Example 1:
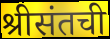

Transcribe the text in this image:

श्रीसंतची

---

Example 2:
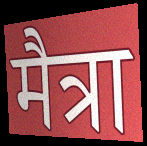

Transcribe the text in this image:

मैत्रा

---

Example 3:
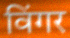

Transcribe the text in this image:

विंगर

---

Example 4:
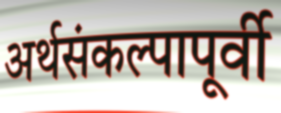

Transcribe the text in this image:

अर्थसंकल्पापूर्वी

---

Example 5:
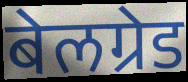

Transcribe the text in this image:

बेलग्रेड